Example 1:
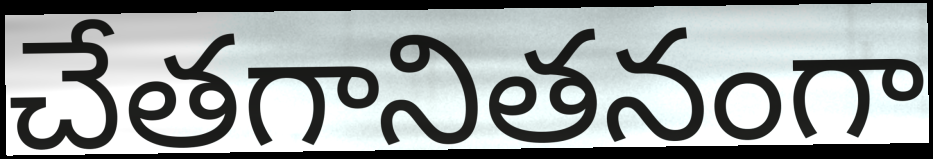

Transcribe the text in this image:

చేతగానితనంగా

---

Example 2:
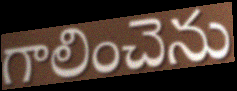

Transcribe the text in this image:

గాలించెను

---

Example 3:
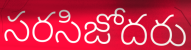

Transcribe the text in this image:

సరసిజోదరు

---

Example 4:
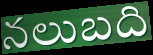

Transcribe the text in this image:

నలుబది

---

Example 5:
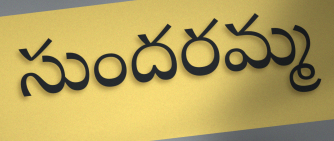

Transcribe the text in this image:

సుందరమ్మ